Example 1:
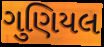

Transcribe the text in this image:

ગુણિયલ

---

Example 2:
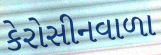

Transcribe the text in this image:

કેરોસીનવાળા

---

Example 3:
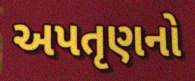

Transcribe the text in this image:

અપતૃણનો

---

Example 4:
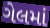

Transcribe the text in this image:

ગેલમાં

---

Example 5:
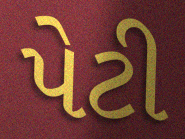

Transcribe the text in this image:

પેટી